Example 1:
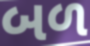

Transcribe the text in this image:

બળ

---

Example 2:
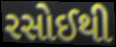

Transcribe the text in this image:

રસોઈથી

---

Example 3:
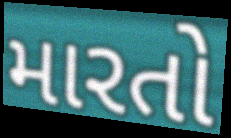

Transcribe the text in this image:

મારતો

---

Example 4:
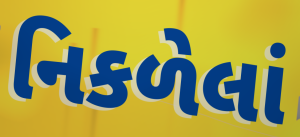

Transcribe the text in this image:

નિકળેલાં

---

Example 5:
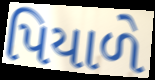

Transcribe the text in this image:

પિયાળે